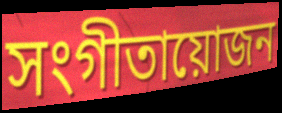
সংগীতায়োজন